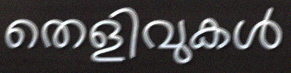
തെളിവുകൾ